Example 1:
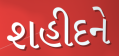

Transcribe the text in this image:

શહીદને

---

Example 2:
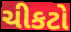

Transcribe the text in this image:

ચીકટો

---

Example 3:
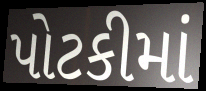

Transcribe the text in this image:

પોટકીમાં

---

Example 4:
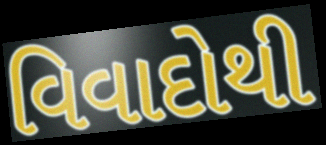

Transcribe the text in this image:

વિવાદોથી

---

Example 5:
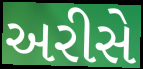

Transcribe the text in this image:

અરીસે